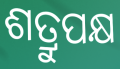
ଶତ୍ରୁପକ୍ଷ